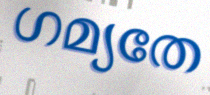
ഗമ്യതേ